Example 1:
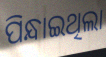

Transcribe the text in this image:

ପିନ୍ଧାଇଥିଲା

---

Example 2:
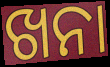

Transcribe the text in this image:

ଖନା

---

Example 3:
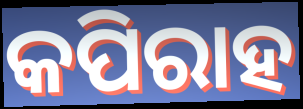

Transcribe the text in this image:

କପିରାହ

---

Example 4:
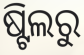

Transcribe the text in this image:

ଷ୍ଟିଲରୁ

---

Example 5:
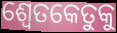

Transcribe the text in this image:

ଶ୍ୱେତକେତୁକୁ